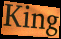
King